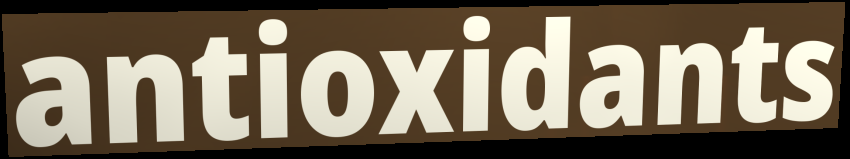
antioxidants